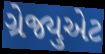
ગ્રેજ્યુએટ